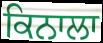
ਕਿਨਾਲਾ